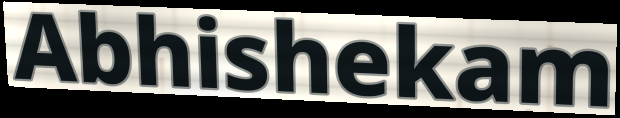
Abhishekam